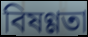
বিষণ্ণতা